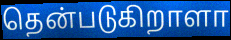
தென்படுகிறாளா